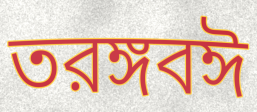
তরঙ্গবঈ